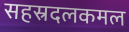
सहस्रदलकमल